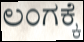
ಲಂಗಕ್ಕೆ